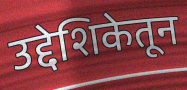
उद्देशिकेतून